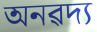
অনৱদ্য